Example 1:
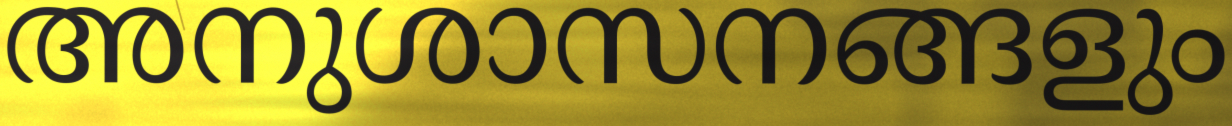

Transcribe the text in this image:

അനുശാസനങ്ങളും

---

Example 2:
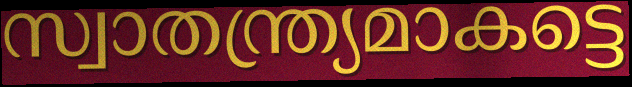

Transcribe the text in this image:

സ്വാതന്ത്ര്യമാകട്ടെ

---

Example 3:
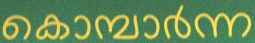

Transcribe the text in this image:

കൊമ്പാർന്ന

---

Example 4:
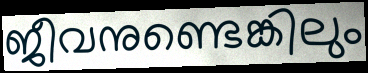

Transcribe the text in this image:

ജീവനുണ്ടെങ്കിലും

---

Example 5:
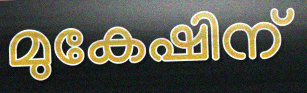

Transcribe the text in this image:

മുകേഷിന്